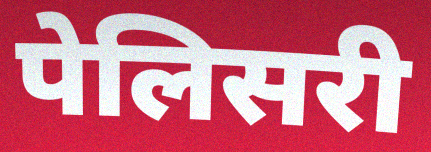
पेलिसरी